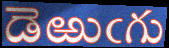
డెఱుఁగు